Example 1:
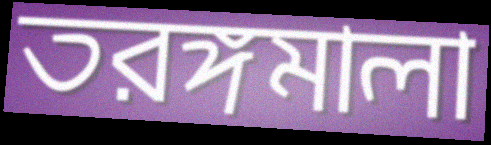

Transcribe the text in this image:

তরঙ্গমালা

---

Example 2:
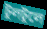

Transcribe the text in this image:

টুলটুলে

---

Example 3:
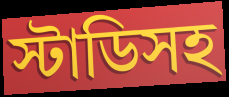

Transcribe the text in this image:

স্টাডিসহ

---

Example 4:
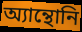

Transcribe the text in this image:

অ্যান্থোনি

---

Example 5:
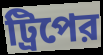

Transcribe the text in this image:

ট্রিপের